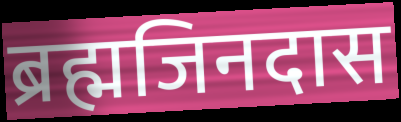
ब्रह्मजिनदास